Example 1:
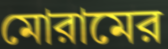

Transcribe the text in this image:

মোরামের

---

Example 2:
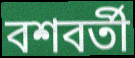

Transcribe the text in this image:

বশবর্তী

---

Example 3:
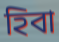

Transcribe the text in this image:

হিবা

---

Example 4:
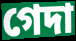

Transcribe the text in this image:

গেদা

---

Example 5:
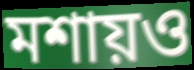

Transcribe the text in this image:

মশায়ও